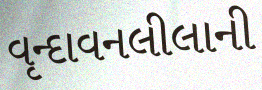
વૃન્દાવનલીલાની